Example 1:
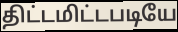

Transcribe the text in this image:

திட்டமிட்டபடியே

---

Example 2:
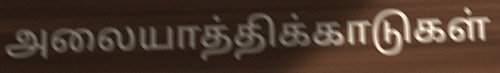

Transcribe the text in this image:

அலையாத்திக்காடுகள்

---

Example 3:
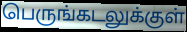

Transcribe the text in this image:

பெருங்கடலுக்குள்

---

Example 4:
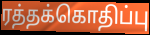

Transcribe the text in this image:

ரத்தக்கொதிப்பு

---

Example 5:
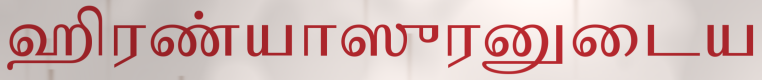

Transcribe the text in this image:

ஹிரண்யாஸுரனுடைய